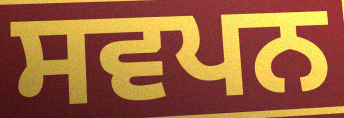
ਸਵਪਨ